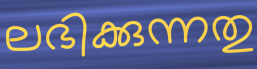
ലഭിക്കുന്നതു